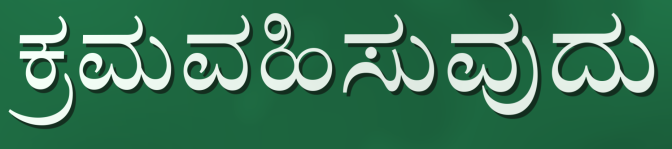
ಕ್ರಮವಹಿಸುವುದು